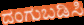
ದಂಗುಬಡಿಸಿ